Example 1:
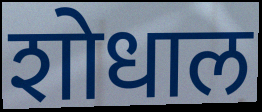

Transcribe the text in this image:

शोधाल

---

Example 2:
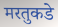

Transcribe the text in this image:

मरतुकडे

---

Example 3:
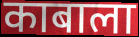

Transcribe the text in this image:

काबाला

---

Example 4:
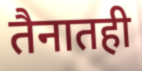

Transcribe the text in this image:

तैनातही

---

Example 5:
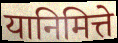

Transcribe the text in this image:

यानिमित्ते